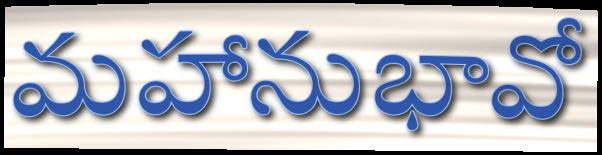
మహానుభావో